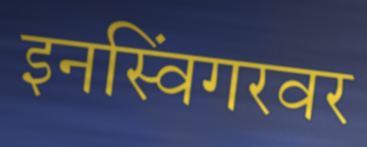
इनस्विंगरवर